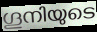
ഗൂനിയുടെ